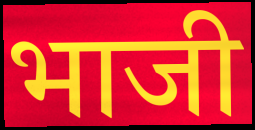
भाजी